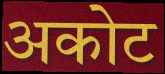
अकोट